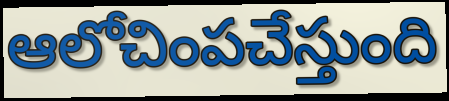
ఆలోచింపచేస్తుంది